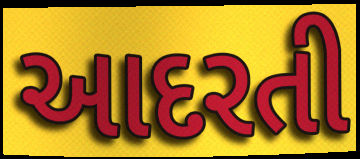
આદરતી